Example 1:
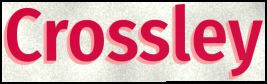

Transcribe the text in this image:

Crossley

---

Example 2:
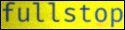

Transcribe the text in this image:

fullstop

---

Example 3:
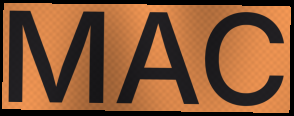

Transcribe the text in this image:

MAC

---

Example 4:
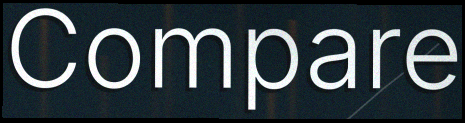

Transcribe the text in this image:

Compare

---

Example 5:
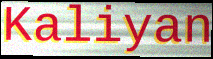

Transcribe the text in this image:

Kaliyan